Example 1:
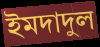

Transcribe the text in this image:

ইমদাদুল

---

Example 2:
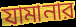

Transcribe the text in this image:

যামানার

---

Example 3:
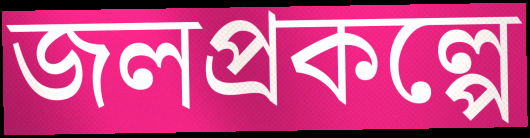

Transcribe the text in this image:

জলপ্রকল্পে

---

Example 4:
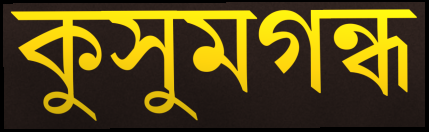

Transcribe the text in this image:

কুসুমগন্ধ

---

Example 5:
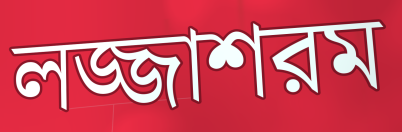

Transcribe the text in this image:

লজ্জাশরম